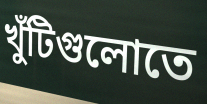
খুঁটিগুলোতে